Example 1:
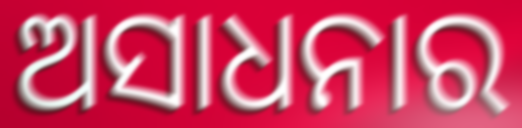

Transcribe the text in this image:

ଅସାଧନାର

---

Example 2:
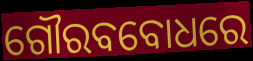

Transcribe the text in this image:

ଗୌରବବୋଧରେ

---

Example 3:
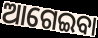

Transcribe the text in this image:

ଆଗେଇବା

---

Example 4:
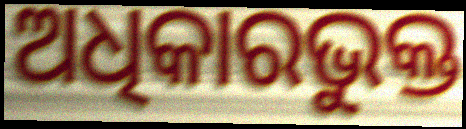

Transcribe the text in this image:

ଅଧିକାରଭୁକ୍ତ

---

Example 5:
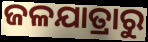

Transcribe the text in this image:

ଜଳଯାତ୍ରାରୁ